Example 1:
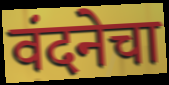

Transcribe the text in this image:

वंदनेचा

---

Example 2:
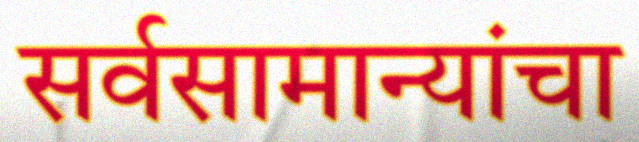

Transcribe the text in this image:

सर्वसामान्यांचा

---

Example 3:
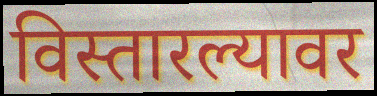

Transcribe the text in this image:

विस्तारल्यावर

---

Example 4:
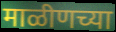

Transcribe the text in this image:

माळीणच्या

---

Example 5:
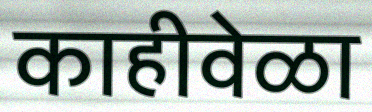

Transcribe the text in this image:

काहीवेळा